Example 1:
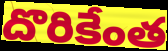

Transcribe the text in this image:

దొరికేంత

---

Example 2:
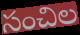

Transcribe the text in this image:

సంచిల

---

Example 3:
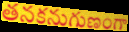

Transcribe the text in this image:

తనకనుగుణంగా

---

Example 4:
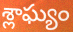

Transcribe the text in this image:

శ్లాఘ్యం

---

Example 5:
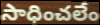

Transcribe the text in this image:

సాధించలేం